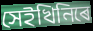
সেইখিনিৰে